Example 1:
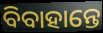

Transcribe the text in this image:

ବିବାହାନ୍ତେ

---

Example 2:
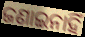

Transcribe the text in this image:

ଜଣାଇନାହିଁ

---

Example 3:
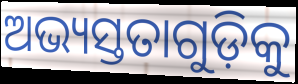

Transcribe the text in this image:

ଅଭ୍ୟସ୍ତତାଗୁଡ଼ିକୁ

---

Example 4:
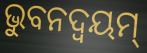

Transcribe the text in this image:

ଭୁବନଦ୍ଵୟମ୍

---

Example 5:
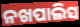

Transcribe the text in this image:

ନଖପାଲିସ